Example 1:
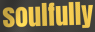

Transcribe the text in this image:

soulfully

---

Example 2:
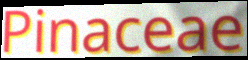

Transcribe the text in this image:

Pinaceae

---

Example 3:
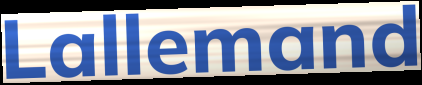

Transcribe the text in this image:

Lallemand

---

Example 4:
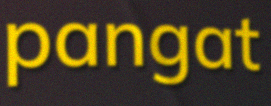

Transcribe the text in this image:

pangat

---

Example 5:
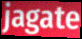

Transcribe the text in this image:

jagate